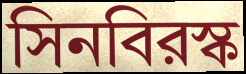
সিনবিরস্ক